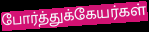
போர்த்துக்கேயர்கள்